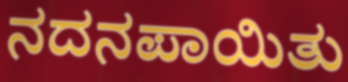
ನದನಪಾಯಿತು